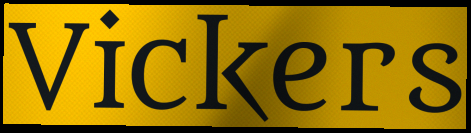
Vickers